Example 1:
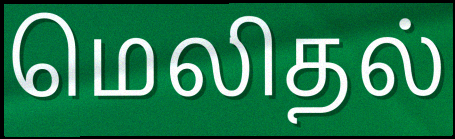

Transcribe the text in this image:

மெலிதல்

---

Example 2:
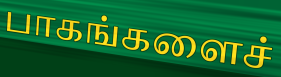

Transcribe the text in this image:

பாகங்களைச்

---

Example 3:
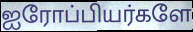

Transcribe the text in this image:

ஐரோப்பியர்களே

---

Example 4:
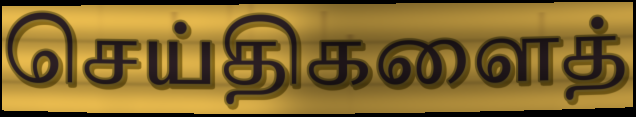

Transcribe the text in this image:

செய்திகளைத்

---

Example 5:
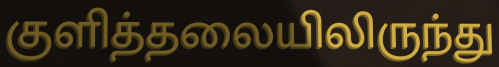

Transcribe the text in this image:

குளித்தலையிலிருந்து